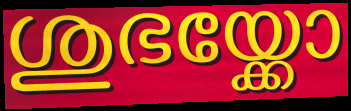
ശുഭയ്ക്കോ